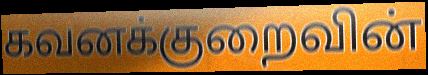
கவனக்குறைவின்